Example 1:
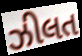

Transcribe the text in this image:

ઝીલત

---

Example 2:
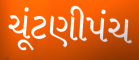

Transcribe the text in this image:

ચૂંટણીપંચ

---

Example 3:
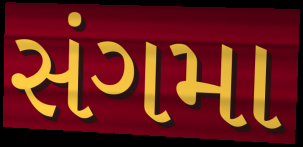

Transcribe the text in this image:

સંગમા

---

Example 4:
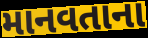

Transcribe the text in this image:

માનવતાના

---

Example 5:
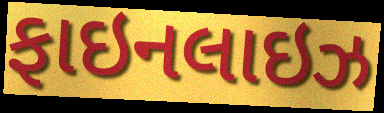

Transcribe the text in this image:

ફાઇનલાઇઝ